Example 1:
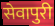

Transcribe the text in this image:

सेवापुरी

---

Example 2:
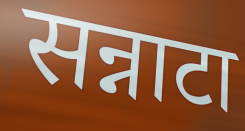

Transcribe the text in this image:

सन्नाटा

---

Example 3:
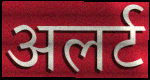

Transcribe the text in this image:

अलर्ट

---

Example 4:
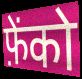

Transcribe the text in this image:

फ़ेंको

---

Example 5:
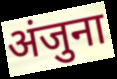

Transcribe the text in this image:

अंजुना